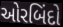
ઓરબિંદો